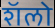
शॅलो